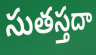
సుతస్తదా